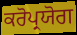
ਕਰੋਪ੍ਰਯੋਗ